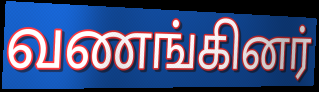
வணங்கினர்